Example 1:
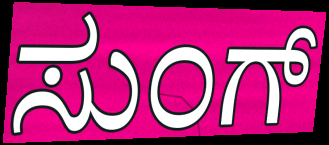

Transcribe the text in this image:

ಸುಂಗ್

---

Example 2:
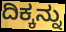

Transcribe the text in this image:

ದಿಕ್ಕನ್ನು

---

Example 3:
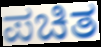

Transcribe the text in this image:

ಪಚಿತ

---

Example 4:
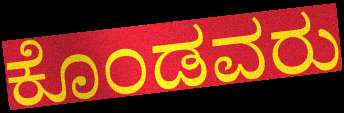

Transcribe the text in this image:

ಕೊಂಡವರು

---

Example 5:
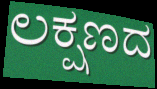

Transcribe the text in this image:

ಲಕ್ಷಣದ